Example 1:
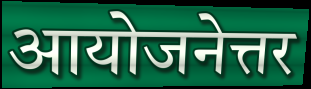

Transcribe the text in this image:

आयोजनेत्तर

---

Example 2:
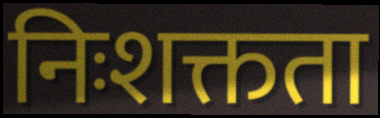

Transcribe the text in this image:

निःशक्तता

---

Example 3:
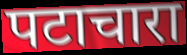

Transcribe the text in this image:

पटाचारा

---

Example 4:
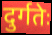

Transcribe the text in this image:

दुर्गतेः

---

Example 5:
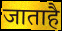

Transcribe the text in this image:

जाताहै